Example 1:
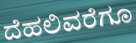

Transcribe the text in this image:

ದೆಹಲಿವರೆಗೂ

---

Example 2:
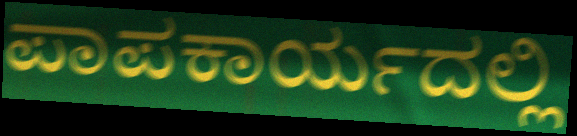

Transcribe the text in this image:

ಪಾಪಕಾರ್ಯದಲ್ಲಿ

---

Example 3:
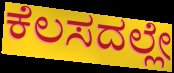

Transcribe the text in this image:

ಕೆಲಸದಲ್ಲೇ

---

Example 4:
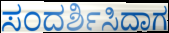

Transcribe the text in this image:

ಸಂದರ್ಶಿಸಿದಾಗ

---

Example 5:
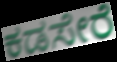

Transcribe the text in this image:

ಕಡಸೇರೆ